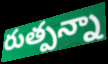
రుత్పన్నా